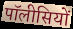
पॉलीसियों